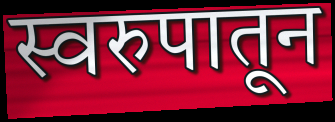
स्वरुपातून